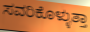
ಸವರಿಕೊಳ್ಳುತ್ತಾ